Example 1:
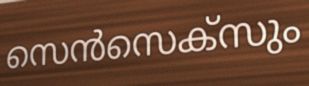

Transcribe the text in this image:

സെൻസെക്സും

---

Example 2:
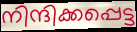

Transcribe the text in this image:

നിന്ദിക്കപ്പെട്ട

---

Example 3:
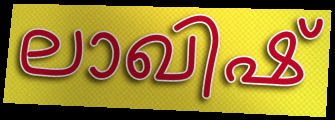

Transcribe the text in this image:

ലാഖിഷ്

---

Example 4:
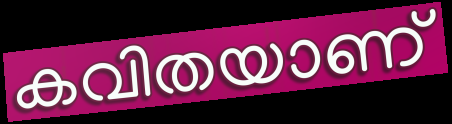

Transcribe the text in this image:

കവിതയാണ്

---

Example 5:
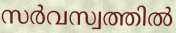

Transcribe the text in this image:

സർവസ്വത്തിൽ